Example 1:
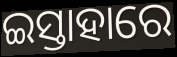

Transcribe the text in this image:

ଇସ୍ତାହାରେ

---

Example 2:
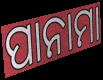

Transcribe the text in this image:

ପାନାମା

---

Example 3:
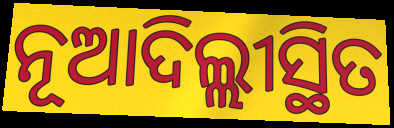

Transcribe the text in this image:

ନୂଆଦିଲ୍ଲୀସ୍ଥିତ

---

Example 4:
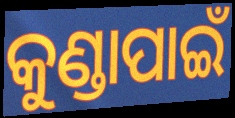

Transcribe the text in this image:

କୁଣ୍ଡାପାଇଁ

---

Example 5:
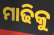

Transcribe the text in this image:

ମାଢିକୁ